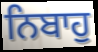
ਨਿਬਾਹੁ